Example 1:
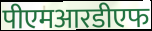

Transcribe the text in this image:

पीएमआरडीएफ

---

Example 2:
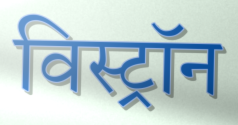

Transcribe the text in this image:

विस्ट्रॉन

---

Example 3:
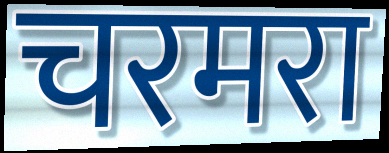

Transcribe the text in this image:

चरमरा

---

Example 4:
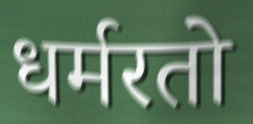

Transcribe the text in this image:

धर्मरतो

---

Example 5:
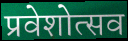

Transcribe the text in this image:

प्रवेशोत्सव